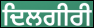
ਦਿਲਗੀਰੀ